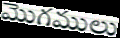
మొగములు